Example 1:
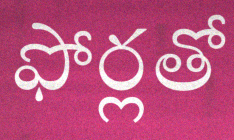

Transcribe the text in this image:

ఫోర్లతో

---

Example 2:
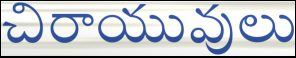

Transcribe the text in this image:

చిరాయువులు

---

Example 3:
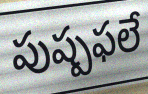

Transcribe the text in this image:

పుష్పఫలే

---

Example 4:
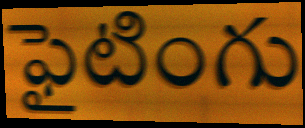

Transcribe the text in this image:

ఫైటింగు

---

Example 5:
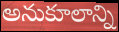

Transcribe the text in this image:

అనుకూలాన్ని